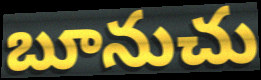
బూనుచు